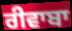
ਰੀਵਾਬਾ